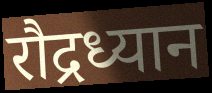
रौद्रध्यान